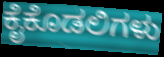
ಕೈಕೊಡಲಿಗಳು